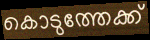
കൊടുത്തേക്ക്